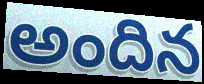
అందిన